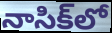
నాసిక్‌లో